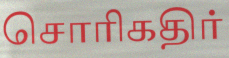
சொரிகதிர்